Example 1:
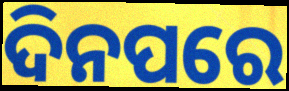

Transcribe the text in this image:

ଦିନପରେ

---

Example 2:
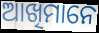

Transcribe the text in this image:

ଆଖିମାନେ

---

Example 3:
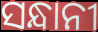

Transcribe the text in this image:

ସନ୍ଧାନୀ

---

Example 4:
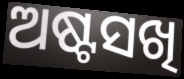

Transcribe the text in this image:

ଅଷ୍ଟସଖି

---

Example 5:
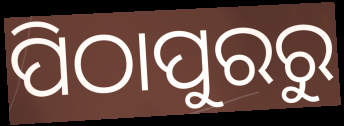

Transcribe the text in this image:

ପିଠାପୁରରୁ